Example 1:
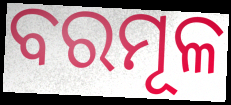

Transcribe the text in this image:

ବରମୂଳ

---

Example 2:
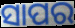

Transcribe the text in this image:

ସାପର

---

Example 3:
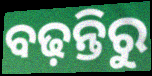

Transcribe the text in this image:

ବଢ଼ନ୍ତିରୁ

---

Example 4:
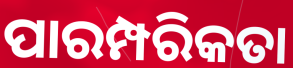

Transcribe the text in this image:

ପାରମ୍ପରିକତା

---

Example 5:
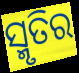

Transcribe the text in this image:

ସ୍ମୃତିର